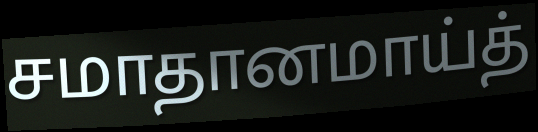
சமாதானமாய்த்